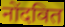
नोंदवित